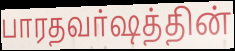
பாரதவர்ஷத்தின்